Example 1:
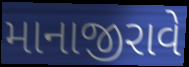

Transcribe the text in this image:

માનાજીરાવે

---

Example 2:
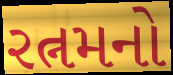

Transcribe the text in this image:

રત્નમનો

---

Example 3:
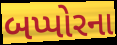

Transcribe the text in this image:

બપ્પોરના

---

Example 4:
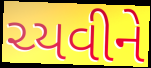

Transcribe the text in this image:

ચ્યવીને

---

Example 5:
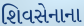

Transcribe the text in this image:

શિવસેનાના